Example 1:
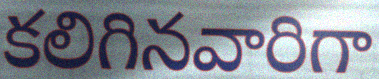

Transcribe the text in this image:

కలిగినవారిగా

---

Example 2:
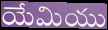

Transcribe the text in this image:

యేమియు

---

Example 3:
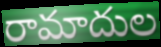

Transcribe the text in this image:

రామాదుల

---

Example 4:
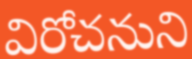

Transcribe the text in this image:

విరోచనుని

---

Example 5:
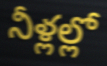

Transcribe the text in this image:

నీళ్లల్లో